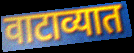
वाटाव्यात